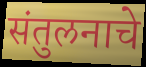
संतुलनाचे